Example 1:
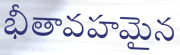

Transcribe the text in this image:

భీతావహమైన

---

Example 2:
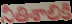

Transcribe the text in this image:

నీతిశాలికి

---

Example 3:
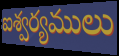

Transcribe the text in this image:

ఐశ్వర్యములు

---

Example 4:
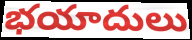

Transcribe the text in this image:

భయాదులు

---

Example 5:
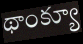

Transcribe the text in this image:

థాంక్యూ